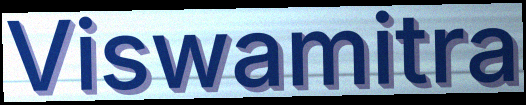
Viswamitra